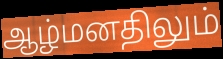
ஆழ்மனதிலும்